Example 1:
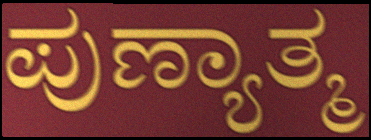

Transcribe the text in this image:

ಪುಣ್ಯಾತ್ಮ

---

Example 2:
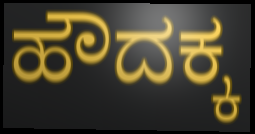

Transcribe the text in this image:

ಹೌದಕ್ಕ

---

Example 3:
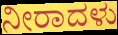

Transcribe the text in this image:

ನೀರಾದಳು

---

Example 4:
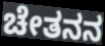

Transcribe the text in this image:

ಚೇತನನ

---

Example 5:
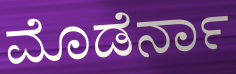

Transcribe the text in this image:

ಮೊಡೆರ್ನಾ